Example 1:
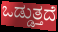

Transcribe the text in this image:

ಒಡ್ಡುತ್ತದೆ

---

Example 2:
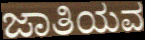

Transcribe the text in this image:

ಜಾತಿಯವ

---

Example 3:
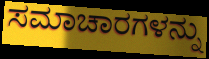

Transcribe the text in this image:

ಸಮಾಚಾರಗಳನ್ನು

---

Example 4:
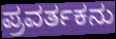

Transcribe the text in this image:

ಪ್ರವರ್ತಕನು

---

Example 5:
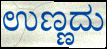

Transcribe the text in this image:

ಉಣ್ಣದು